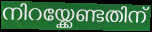
നിറയ്ക്കേണ്ടതിന്